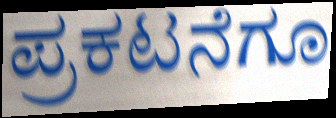
ಪ್ರಕಟನೆಗೂ